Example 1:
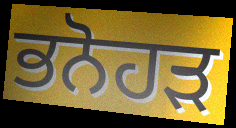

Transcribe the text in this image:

ਭਨੋਹੜ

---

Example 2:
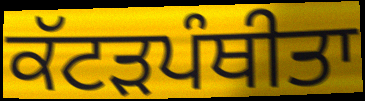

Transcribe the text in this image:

ਕੱਟੜਪੰਥੀਤਾ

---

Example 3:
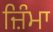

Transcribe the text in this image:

ਜ਼ਿੰਮਾ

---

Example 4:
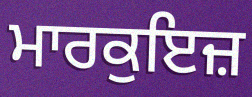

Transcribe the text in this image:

ਮਾਰਕੁਇਜ਼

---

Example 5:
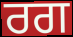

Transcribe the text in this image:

ਰਗ